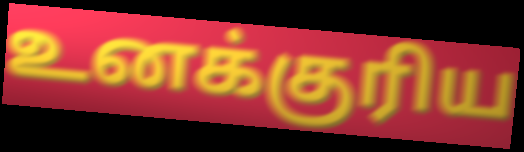
உனக்குரிய